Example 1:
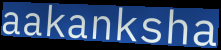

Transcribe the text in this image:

aakanksha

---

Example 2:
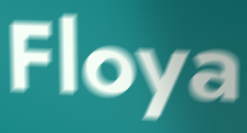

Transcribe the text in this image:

Floya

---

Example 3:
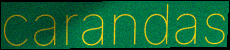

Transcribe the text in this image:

carandas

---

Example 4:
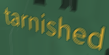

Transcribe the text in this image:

tarnished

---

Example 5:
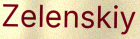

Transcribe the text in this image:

Zelenskiy